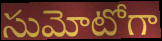
సుమోటోగా